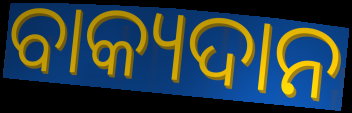
ବାକ୍ୟଦାନ